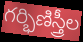
గర్భిణిస్త్రీల